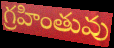
గ్రహింతువు